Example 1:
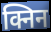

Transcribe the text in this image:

क्निन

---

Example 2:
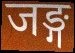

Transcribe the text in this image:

जङ्ग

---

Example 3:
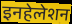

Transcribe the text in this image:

इनहेलेशन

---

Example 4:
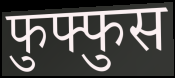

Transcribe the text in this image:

फुफ्फुस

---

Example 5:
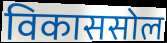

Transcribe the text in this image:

विकाससोल